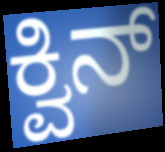
ಕ್ವಿನ್